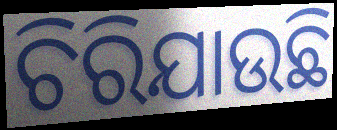
ଚିରିଯାଉଛି